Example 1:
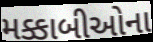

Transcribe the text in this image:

મક્કાબીઓના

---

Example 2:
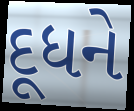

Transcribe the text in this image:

દૂધને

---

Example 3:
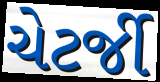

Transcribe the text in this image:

ચેટર્જી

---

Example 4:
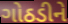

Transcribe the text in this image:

ગોઠડીને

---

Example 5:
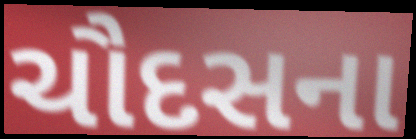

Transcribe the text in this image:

ચૌદસના